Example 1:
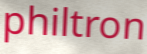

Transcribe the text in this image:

philtron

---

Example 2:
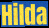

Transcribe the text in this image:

Hilda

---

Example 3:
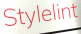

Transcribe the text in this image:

Stylelint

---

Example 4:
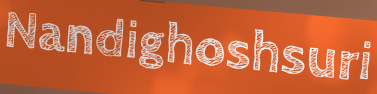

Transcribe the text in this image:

Nandighoshsuri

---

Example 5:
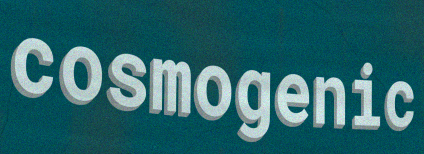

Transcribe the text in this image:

cosmogenic